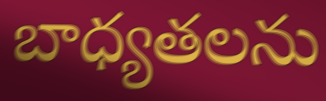
బాధ్యతలను